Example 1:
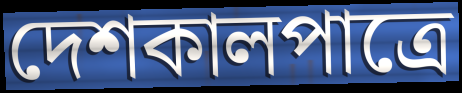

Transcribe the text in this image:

দেশকালপাত্রে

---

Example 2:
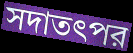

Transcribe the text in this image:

সদাতৎপর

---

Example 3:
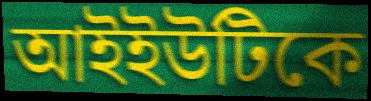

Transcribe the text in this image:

আইইউটিকে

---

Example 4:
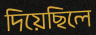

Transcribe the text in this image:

দিয়েছিলে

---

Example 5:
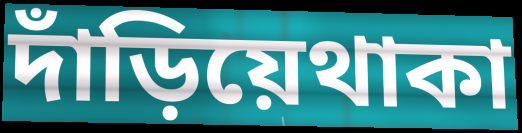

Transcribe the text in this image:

দাঁড়িয়েথাকা